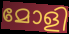
മോളി